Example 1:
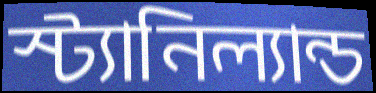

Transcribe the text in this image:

স্ট্যানিল্যান্ড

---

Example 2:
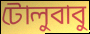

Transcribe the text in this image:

টোলুবাবু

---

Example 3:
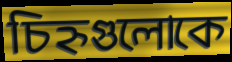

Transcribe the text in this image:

চিহ্নগুলোকে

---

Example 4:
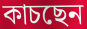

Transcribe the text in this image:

কাচছেন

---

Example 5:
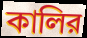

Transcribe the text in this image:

কালির